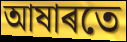
আষাৰতে